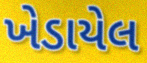
ખેડાયેલ